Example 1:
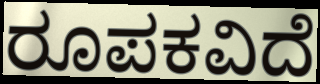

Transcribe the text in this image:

ರೂಪಕವಿದೆ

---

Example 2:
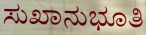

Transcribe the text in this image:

ಸುಖಾನುಭೂತಿ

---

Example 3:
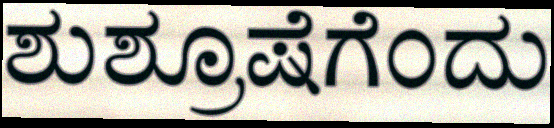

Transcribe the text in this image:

ಶುಶ್ರೂಷೆಗೆಂದು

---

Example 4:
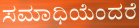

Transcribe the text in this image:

ಸಮಾಧಿಯೆಂದರೆ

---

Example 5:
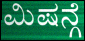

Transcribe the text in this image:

ಮಿಷನ್ಗೆ